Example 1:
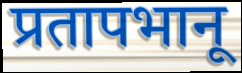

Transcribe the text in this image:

प्रतापभानू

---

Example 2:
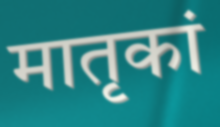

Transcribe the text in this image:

मातृकां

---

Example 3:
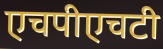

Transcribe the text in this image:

एचपीएचटी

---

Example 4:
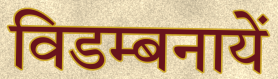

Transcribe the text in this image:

विडम्बनायें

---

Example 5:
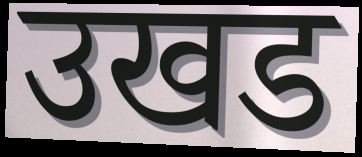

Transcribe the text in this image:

उखड